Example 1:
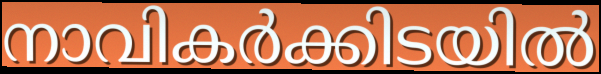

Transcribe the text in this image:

നാവികർക്കിടയിൽ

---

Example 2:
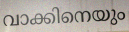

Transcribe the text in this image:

വാക്കിനെയും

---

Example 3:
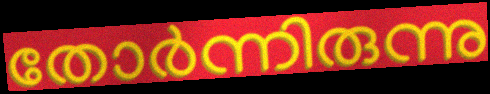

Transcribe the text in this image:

തോർന്നിരുന്നു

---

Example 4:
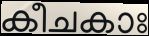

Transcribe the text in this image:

കീചകാഃ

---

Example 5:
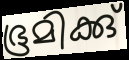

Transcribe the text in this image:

ഭൂമിക്കു്